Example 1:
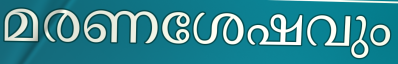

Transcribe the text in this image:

മരണശേഷവും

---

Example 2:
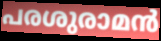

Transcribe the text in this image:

പരശുരാമൻ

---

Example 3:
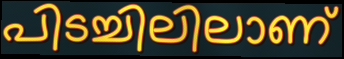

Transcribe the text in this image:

പിടച്ചിലിലാണ്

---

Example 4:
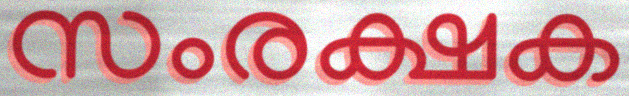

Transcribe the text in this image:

സംരക്ഷക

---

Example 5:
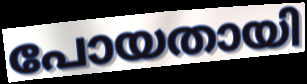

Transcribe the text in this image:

പോയതായി